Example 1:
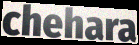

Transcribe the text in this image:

chehara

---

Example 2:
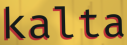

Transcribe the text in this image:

kalta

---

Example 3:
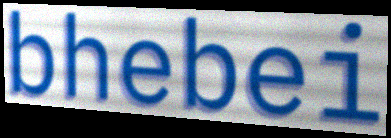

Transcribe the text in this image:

bhebei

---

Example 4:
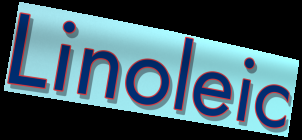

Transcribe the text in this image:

Linoleic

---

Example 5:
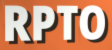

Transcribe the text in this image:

RPTO